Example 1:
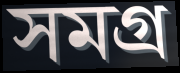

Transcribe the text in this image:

সমগ্র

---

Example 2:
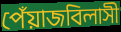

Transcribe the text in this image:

পেঁয়াজবিলাসী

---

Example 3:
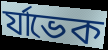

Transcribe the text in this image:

র্যাভেক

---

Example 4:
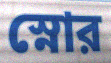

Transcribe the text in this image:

স্নোর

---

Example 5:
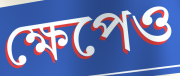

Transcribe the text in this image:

ক্ষেপেও